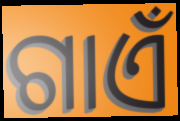
ଗାଏଁ